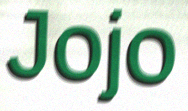
Jojo